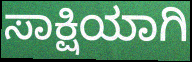
ಸಾಕ್ಷಿಯಾಗಿ